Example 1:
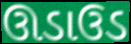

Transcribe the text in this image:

ઊડાઉડ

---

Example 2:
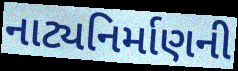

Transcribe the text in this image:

નાટ્યનિર્માણની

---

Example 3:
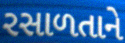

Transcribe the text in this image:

રસાળતાને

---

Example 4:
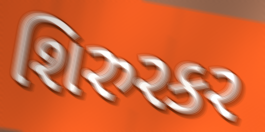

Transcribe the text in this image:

શિરુરકર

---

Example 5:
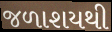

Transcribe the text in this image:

જળાશયથી